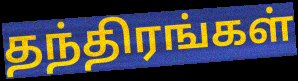
தந்திரங்கள்